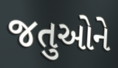
જતુઓને